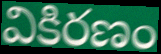
వికిరణం